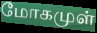
மோகமுள்